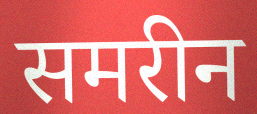
समरीन